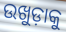
ଉଖୁଡ଼ାକୁ